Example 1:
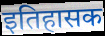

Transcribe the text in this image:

इतिहासक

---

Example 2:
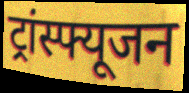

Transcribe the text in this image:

ट्रांस्फ्यूजन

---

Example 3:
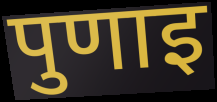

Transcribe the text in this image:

पुणाइ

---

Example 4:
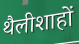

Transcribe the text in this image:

थैलीशाहों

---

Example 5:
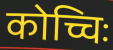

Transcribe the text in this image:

कोच्चिः